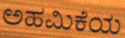
ಅಹಮಿಕೆಯ